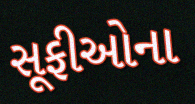
સૂફીઓના